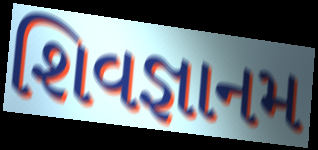
શિવજ્ઞાનમ